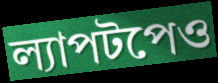
ল্যাপটপেও